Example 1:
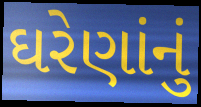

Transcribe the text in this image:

ઘરેણાંનું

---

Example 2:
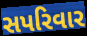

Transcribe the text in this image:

સપરિવાર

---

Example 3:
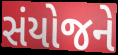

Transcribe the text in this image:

સંયોજને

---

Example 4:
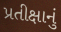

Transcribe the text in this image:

પ્રતીક્ષાનું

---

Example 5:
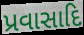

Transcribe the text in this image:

પ્રવાસાદિ